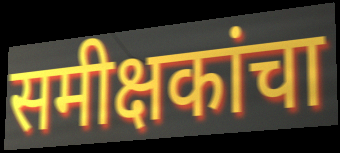
समीक्षकांचा